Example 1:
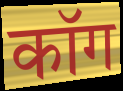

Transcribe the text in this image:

कॉग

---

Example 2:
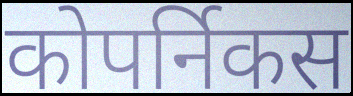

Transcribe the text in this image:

कोपर्निकस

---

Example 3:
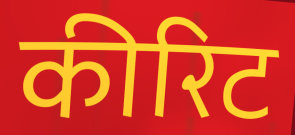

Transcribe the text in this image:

कीरिट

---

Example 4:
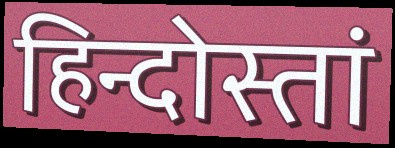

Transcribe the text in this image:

हिन्दोस्तां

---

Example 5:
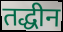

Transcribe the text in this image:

तद्धीन